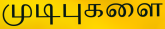
முடிபுகளை